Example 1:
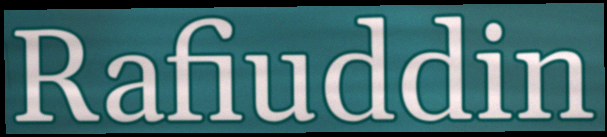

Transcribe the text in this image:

Rafiuddin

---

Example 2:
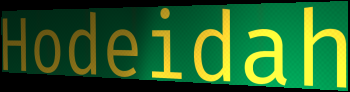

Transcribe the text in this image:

Hodeidah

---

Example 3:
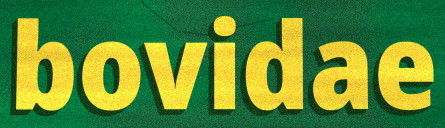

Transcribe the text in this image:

bovidae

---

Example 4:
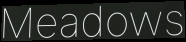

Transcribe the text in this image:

Meadows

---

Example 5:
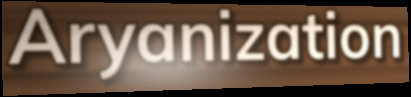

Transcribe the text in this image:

Aryanization